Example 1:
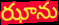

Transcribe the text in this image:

ఝాను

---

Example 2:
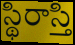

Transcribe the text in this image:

స్థిరాస్తి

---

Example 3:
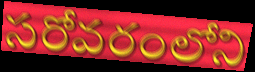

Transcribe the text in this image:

సరోవరంలోని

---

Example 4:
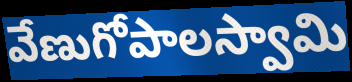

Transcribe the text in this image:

వేణుగోపాలస్వామి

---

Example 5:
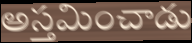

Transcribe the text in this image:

అస్తమించాడు